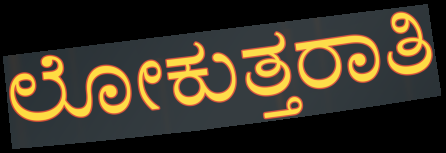
ಲೋಕುತ್ತರಾತಿ